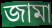
জামা